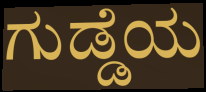
ಗುಡ್ಡೆಯ